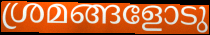
ശ്രമങ്ങളോടു